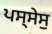
ਪਸ੍ਸੇਸੁ